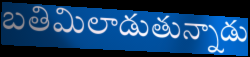
బతిమిలాడుతున్నాడు